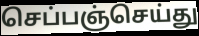
செப்பஞ்செய்து